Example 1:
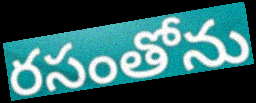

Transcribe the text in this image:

రసంతోను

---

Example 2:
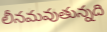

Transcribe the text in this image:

లీనమవుతున్నది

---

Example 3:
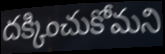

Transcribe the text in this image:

దక్కించుకోమని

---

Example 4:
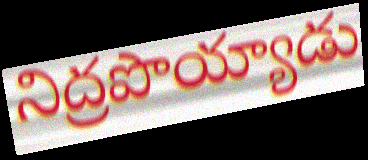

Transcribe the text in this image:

నిద్రపొయ్యాడు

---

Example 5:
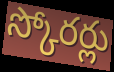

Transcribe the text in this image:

స్కోరర్లు